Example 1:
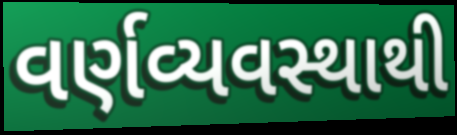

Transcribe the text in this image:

વર્ણવ્યવસ્થાથી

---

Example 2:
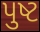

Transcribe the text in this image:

પુષ્ટ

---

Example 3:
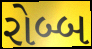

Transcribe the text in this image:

રોબ્બ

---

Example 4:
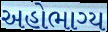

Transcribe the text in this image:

અહોભાગ્ય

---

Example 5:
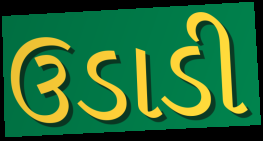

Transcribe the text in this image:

ઉડાડી